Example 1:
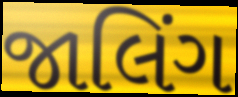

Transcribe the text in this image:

જાલિંગ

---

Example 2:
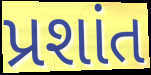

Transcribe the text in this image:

પ્રશાંત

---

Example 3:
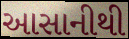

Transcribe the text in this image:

આસાનીથી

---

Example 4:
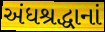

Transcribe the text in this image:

અંધશ્રદ્ધાનાં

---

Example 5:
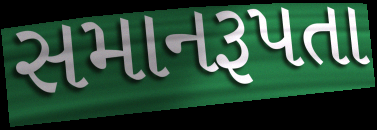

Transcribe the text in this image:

સમાનરૂપતા